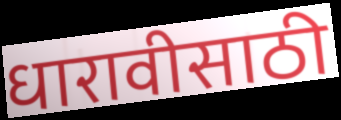
धारावीसाठी